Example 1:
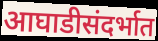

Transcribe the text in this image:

आघाडीसंदर्भात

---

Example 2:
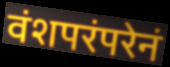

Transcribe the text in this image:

वंशपरंपरेनं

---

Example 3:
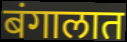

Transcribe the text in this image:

बंगालात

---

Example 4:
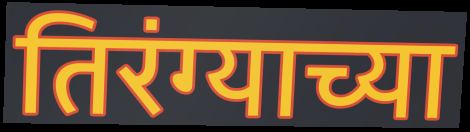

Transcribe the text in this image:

तिरंग्याच्या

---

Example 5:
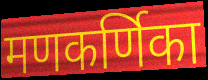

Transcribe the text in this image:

मणकर्णिका